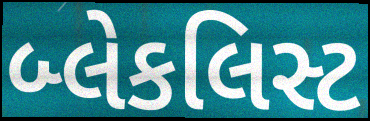
બ્લેકલિસ્ટ